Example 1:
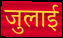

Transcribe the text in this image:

जुलाई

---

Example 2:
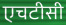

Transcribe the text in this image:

एचटीसी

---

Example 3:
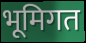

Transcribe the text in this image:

भूमिगत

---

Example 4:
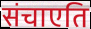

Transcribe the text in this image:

संचाएति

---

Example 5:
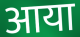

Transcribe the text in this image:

आया